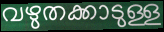
വഴുതക്കാടുള്ള